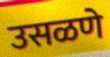
उसळणे